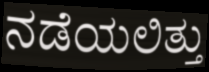
ನಡೆಯಲಿತ್ತು